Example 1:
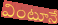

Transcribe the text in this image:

వింటూనే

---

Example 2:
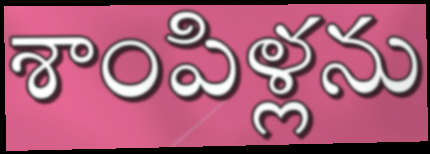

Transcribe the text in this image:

శాంపిళ్లను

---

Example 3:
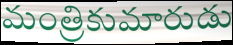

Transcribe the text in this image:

మంత్రికుమారుడు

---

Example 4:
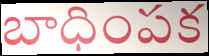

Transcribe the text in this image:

బాధింపక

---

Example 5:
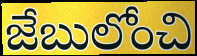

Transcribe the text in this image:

జేబులోంచి